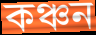
কঞ্চন